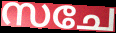
സചേ